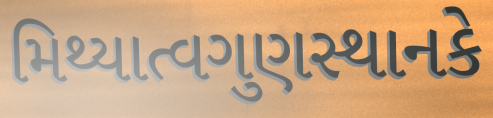
મિથ્યાત્વગુણસ્થાનકે